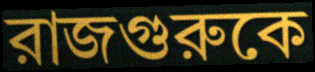
রাজগুরুকে